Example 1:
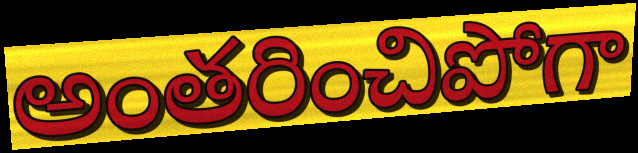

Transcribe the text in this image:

అంతరించిపోగా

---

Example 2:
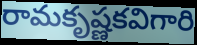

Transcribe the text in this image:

రామకృష్ణకవిగారి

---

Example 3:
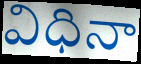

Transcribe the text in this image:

విధినా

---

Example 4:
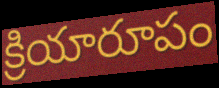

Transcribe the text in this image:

క్రియారూపం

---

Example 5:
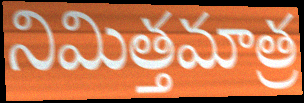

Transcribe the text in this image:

నిమిత్తమాత్ర